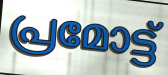
പ്രമോട്ട്